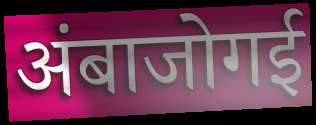
अंबाजोगई